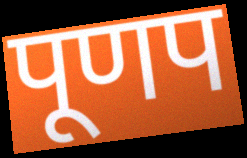
पूणप